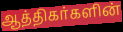
ஆத்திகர்களின்